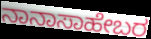
ನಾನಾಸಾಹೇಬರ